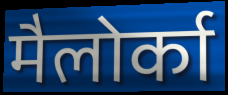
मैलोर्का